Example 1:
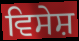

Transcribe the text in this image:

ਵਿਸੇਸ਼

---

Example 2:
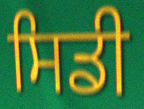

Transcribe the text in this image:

ਸਿਡੀ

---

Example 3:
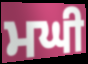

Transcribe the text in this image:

ਮਘੀ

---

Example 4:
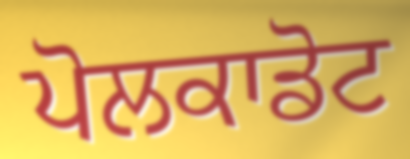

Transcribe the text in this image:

ਪੋਲਕਾਡੋਟ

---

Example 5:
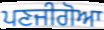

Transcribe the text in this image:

ਪਣਜੀਗੋਆ